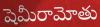
షెమీరామోతు